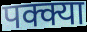
पक्क्या